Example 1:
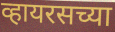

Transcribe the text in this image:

व्हायरसच्या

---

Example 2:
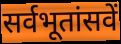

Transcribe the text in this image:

सर्वभूतांसवें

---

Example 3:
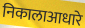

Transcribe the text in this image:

निकालाआधारे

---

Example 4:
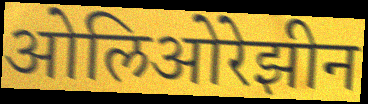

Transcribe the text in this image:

ओलिओरेझीन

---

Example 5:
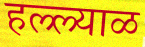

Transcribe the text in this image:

हल्ल्याळ